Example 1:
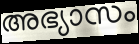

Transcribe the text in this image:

അഭ്യാസം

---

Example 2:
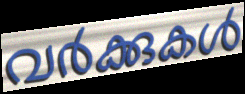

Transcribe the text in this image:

വർക്കുകൾ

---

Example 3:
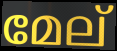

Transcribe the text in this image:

മേല്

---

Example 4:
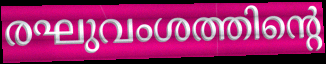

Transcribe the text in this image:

രഘുവംശത്തിന്റെ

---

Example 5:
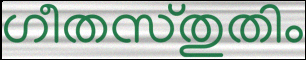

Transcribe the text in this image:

ഗീതസ്തുതിം